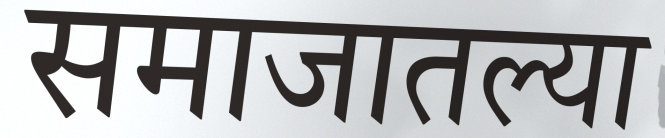
समाजातल्‍या